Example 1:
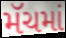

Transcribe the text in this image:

મૅચમાં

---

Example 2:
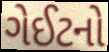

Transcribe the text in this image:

ગેઈટનો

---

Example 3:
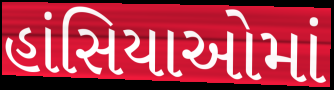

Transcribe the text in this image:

હાંસિયાઓમાં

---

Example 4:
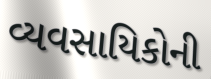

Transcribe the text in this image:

વ્યવસાયિકોની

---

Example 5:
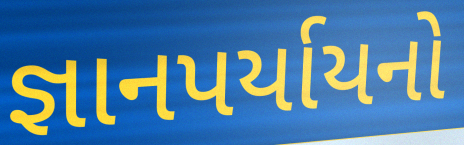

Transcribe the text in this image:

જ્ઞાનપર્યાયનો